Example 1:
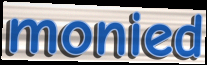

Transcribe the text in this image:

monied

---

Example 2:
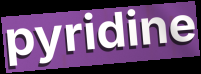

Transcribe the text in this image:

pyridine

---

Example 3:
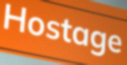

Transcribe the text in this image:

Hostage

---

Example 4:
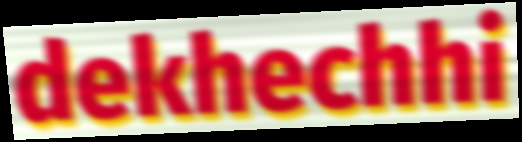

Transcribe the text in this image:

dekhechhi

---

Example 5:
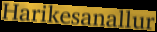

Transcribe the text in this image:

Harikesanallur